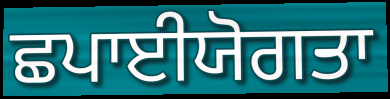
ਛਪਾਈਯੋਗਤਾ